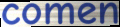
comen